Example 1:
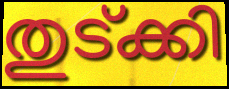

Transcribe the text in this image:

തുട്ക്കി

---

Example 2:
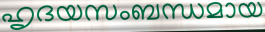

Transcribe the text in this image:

ഹൃദയസംബന്ധമായ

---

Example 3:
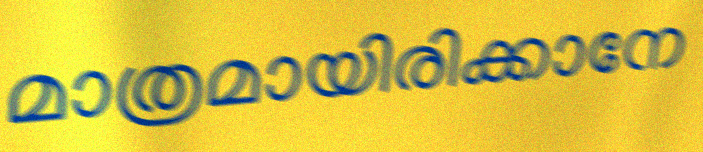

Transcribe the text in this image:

മാത്രമായിരിക്കാനേ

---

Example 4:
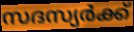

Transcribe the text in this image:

സദസ്യർക്ക്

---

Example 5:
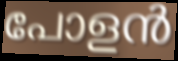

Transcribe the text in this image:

പോളൻ